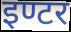
इण्टर